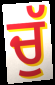
ਚੁੱ